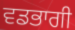
ਵਡਭਾਗੀ